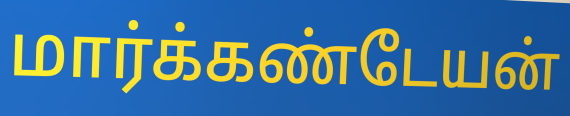
மார்க்கண்டேயன்